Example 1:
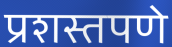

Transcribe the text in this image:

प्रशस्तपणे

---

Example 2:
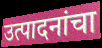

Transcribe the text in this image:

उत्पादनांचा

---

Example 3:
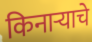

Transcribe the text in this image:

किनाऱ्याचे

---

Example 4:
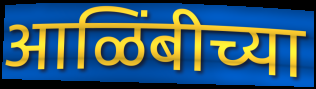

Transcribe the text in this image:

आळिंबीच्या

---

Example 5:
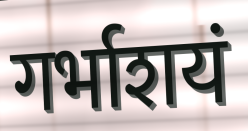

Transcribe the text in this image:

गर्भाशयं